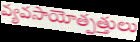
వ్యవసాయోత్పత్తులు